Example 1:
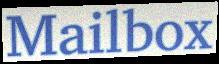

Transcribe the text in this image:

Mailbox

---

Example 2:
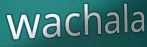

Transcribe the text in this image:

wachala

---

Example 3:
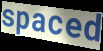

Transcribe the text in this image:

spaced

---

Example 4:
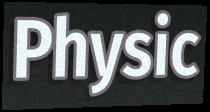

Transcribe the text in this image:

Physic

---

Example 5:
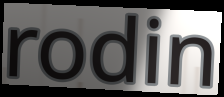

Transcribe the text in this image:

rodin